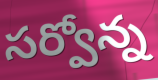
సర్వోన్న